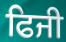
ਫਿਜੀ